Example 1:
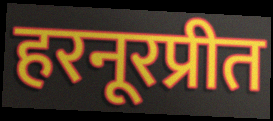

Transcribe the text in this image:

हरनूरप्रीत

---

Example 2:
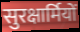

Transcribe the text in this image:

सुरक्षार्मियों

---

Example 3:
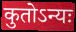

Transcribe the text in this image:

कुतोऽन्यः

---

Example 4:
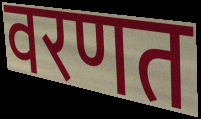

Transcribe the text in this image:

वरणत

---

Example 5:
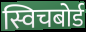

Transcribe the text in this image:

स्विचबोर्ड